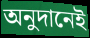
অনুদানেই